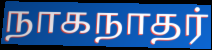
நாகநாதர்